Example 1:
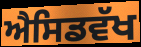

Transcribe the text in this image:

ਐਸਿਡਵੱਖ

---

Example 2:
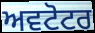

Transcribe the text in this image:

ਅਵਟੋਟਰ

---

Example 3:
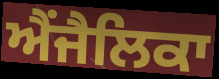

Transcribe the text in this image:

ਐਂਜੈਲਿਕਾ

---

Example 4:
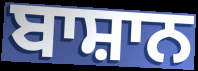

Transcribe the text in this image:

ਬਾਸ਼ਾਨ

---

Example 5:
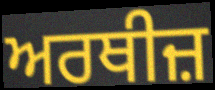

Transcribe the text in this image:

ਅਰਥੀਜ਼